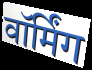
वॉर्मिंग